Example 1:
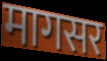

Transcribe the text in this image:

मागसर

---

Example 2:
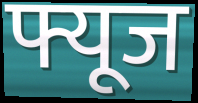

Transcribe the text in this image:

फ्यूज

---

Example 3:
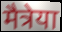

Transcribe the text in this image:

मैत्रेया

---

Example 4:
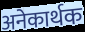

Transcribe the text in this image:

अनेकार्थक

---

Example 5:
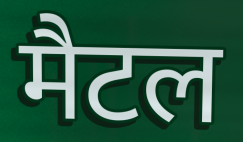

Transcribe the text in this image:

मैटल